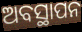
ଅବସ୍ଥାପନ